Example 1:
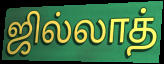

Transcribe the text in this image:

ஜில்லாத்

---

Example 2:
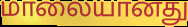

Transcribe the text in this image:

மாலையானது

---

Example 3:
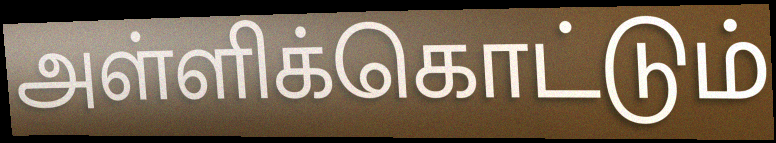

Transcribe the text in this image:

அள்ளிக்கொட்டும்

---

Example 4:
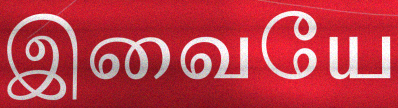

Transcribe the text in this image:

இவையே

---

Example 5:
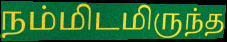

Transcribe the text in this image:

நம்மிடமிருந்த